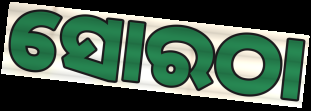
ସୋରଠା